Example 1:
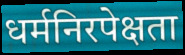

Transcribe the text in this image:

धर्मनिरपेक्षता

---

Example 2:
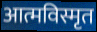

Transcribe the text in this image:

आत्मविस्मृत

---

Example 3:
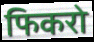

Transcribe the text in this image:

फिकरो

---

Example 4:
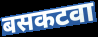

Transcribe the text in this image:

बसकटवा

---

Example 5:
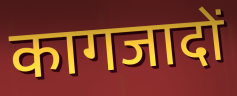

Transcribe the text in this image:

कागजादों